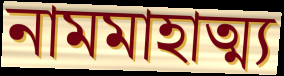
নামমাহাত্ম্য